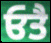
ਓਤੈ